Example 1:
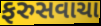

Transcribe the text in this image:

ફરુસવાચા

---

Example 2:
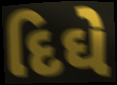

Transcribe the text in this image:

દિઘે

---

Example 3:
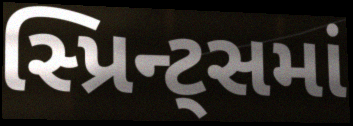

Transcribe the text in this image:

સ્પ્રિન્ટ્સમાં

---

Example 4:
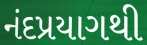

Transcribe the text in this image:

નંદપ્રયાગથી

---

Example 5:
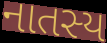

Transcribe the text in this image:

નાતસ્ય